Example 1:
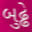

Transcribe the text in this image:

બુઢ્ઢે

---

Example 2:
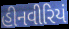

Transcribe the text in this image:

હીનવીરિયં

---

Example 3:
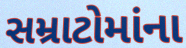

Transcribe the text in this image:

સમ્રાટોમાંના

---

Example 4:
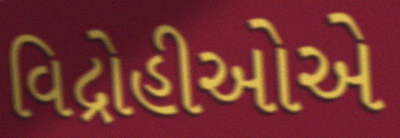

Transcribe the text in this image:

વિદ્રોહીઓએ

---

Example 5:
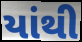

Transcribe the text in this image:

યાંથી